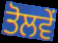
ਤੋਲਵੇਂ